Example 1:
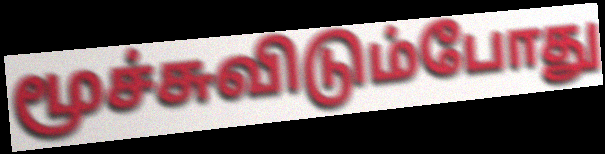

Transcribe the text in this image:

மூச்சுவிடும்போது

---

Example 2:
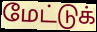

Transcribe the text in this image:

மேட்டுக்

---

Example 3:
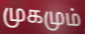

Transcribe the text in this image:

முகமும்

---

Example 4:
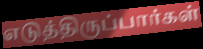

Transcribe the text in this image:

எடுத்திருப்பார்கள்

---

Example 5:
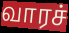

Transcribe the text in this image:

வாரச்